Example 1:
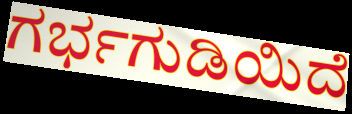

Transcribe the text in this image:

ಗರ್ಭಗುಡಿಯಿದೆ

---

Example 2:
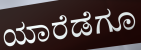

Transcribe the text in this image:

ಯಾರೆಡೆಗೂ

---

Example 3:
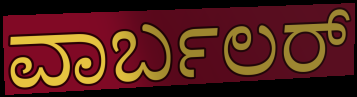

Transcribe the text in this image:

ವಾರ್ಬಲರ್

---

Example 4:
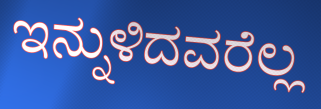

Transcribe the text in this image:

ಇನ್ನುಳಿದವರೆಲ್ಲ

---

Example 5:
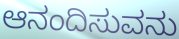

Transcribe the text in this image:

ಆನಂದಿಸುವನು